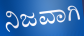
ನಿಜವಾಗಿ